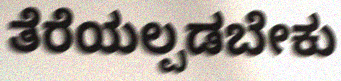
ತೆರೆಯಲ್ಪಡಬೇಕು